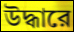
উদ্ধারে